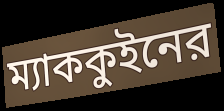
ম্যাককুইনের